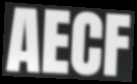
AECF